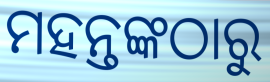
ମହନ୍ତଙ୍କଠାରୁ